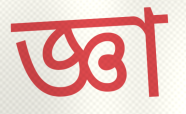
জ্ঞা